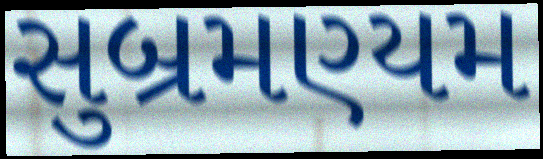
સુબ્રમણ્યમ